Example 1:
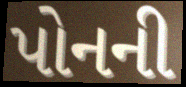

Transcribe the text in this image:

પોનની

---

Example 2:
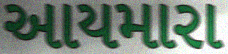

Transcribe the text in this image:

આયમારા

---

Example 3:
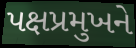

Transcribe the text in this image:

પક્ષપ્રમુખને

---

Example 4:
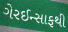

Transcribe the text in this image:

ગેરઈન્સાફથી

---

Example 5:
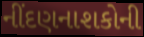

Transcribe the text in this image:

નીંદણનાશકોની